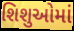
શિશુઓમાં